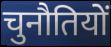
चुनौतियों